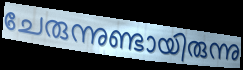
ചേരുന്നുണ്ടായിരുന്നു